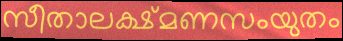
സീതാലക്ഷ്മണസംയുതം